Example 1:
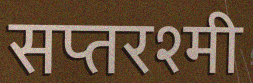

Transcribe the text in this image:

सप्तरश्मी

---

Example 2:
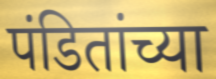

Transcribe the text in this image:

पंडितांच्या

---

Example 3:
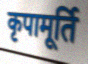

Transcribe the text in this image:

कृपामूर्ति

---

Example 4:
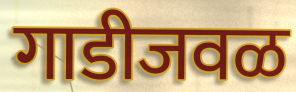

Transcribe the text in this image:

गाडीजवळ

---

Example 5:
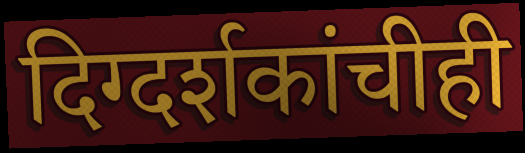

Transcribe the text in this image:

दिग्दर्शकांचीही